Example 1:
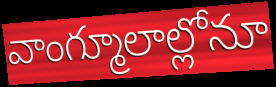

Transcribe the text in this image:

వాంగ్మూలాల్లోనూ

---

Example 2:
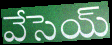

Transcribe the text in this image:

వేసెయ్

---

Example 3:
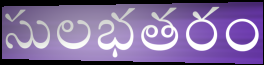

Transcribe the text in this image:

సులభతరం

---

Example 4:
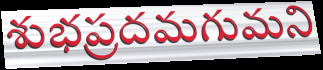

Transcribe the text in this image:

శుభప్రదమగుమని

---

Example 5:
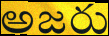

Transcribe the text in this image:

అజరు